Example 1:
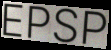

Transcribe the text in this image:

EPSP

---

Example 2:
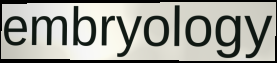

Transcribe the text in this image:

embryology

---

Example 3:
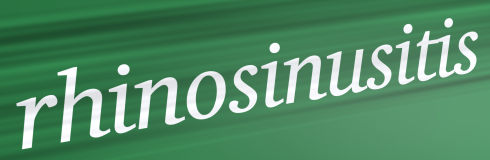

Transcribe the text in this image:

rhinosinusitis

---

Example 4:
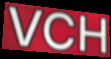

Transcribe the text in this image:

VCH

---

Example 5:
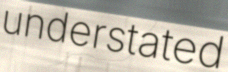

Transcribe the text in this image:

understated